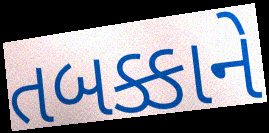
તબક્કાને